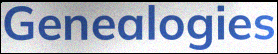
Genealogies